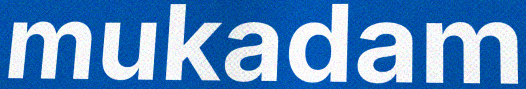
mukadam